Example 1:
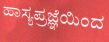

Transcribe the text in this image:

ಹಾಸ್ಯಪ್ರಜ್ಞೆಯಿಂದ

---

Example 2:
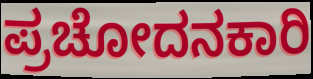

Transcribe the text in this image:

ಪ್ರಚೋದನಕಾರಿ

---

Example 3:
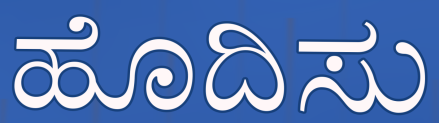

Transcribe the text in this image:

ಹೊದಿಸು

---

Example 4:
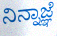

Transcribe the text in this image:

ನಿನ್ನಾಜ್ಞೆ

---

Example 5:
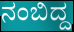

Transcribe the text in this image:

ನಂಬಿದ್ದ